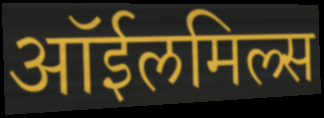
ऑईलमिल्स